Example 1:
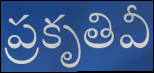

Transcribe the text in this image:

ప్రకృతివీ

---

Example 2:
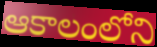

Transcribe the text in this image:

ఆకాలంలోని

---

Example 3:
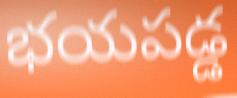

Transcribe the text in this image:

భయపడ్డ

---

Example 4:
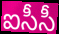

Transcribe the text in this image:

ఐసీసీ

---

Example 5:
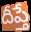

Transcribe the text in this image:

దీప్తే